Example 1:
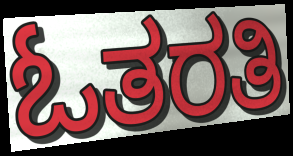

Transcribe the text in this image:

ಓತರತಿ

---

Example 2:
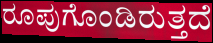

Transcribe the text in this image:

ರೂಪುಗೊಂಡಿರುತ್ತದೆ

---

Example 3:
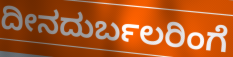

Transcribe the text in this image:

ದೀನದುರ್ಬಲರಿಂಗೆ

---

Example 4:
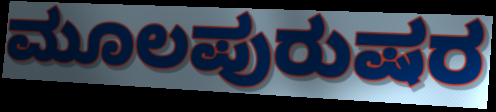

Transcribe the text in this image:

ಮೂಲಪುರುಷರ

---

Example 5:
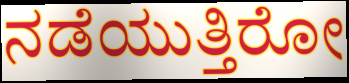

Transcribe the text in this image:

ನಡೆಯುತ್ತಿರೋ